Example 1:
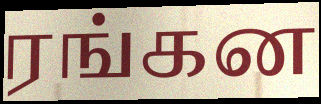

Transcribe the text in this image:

ரங்கன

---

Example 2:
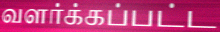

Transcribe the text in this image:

வளர்க்கப்பட்ட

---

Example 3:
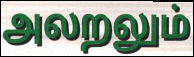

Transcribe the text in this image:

அலறலும்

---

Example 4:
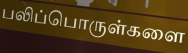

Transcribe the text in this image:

பலிப்பொருள்களை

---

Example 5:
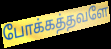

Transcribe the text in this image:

போக்கத்தவளே